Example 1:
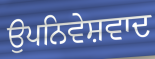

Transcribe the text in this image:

ਉਪਨਿਵੇਸ਼ਵਾਦ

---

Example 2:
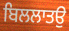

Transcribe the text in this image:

ਬਿਲਲਾਤਉ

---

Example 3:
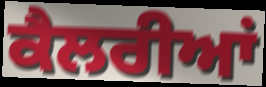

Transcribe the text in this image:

ਕੈਲਰੀਆਂ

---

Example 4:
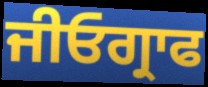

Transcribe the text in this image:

ਜੀਓਗ੍ਰਾਫ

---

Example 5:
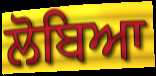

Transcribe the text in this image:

ਲੋਬਿਆ